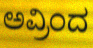
ಅವ್ರಿಂದ